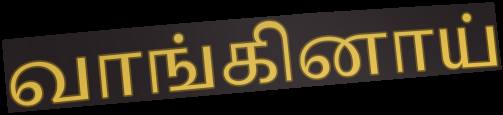
வாங்கினாய்